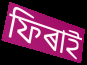
ফিৰাই